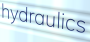
hydraulics